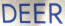
DEER